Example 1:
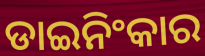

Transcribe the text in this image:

ଡାଇନିଂକାର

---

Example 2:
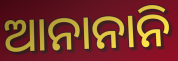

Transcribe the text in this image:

ଆନାନାନି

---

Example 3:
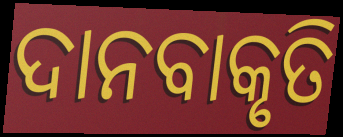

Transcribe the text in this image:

ଦାନବାକୃତି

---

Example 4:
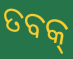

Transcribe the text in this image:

ତବକ୍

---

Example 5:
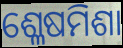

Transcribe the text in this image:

ଶ୍ଳେଷମିଶା